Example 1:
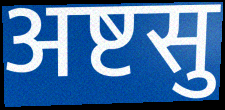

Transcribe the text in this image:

अष्टसु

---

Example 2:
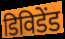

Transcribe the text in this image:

डिविडेंड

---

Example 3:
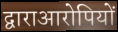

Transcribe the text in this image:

द्वाराआरोपियों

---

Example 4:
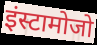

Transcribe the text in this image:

इंस्टामोजो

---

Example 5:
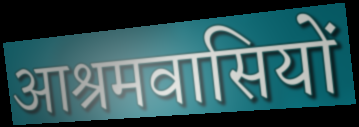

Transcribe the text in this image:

आश्रमवासियों